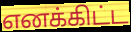
எனக்கிட்ட